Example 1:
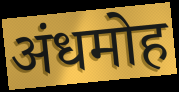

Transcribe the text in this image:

अंधमोह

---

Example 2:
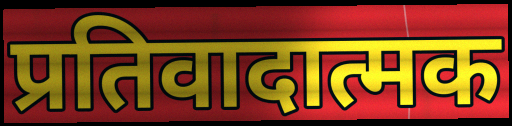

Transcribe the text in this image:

प्रतिवादात्मक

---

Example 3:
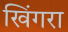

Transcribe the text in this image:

खिंगरा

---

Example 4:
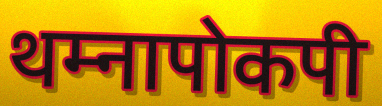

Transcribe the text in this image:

थम्नापोकपी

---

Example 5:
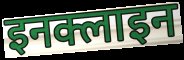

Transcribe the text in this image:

इनक्लाइन